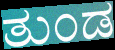
ತುಂಡ